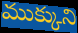
ముక్కుని